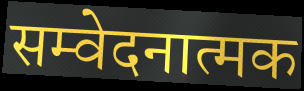
सम्वेदनात्मक